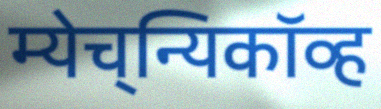
म्येच्‌न्यिकॉव्ह